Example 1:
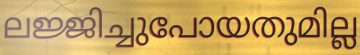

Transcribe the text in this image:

ലജ്ജിച്ചുപോയതുമില്ല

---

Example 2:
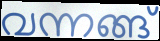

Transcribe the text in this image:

വന്നങ്ങ്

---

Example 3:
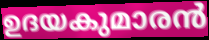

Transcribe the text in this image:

ഉദയകുമാരൻ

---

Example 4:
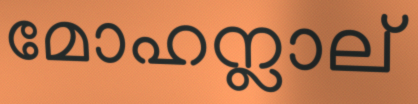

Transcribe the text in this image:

മോഹന്ലാല്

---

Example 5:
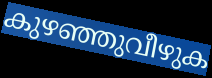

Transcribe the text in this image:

കുഴഞ്ഞുവീഴുക